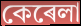
কেৰেলা